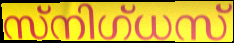
സ്നിഗ്ധസ്